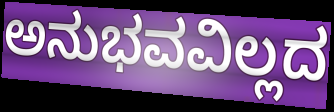
ಅನುಭವವಿಲ್ಲದ